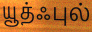
யூத்ஃபுல்